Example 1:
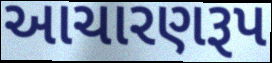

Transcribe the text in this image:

આચારણરૂપ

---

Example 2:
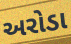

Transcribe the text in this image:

અરોડા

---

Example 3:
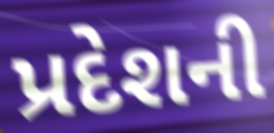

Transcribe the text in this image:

પ્રદેશની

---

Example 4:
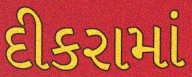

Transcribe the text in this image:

દીકરામાં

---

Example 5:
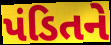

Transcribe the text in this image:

પંડિતને